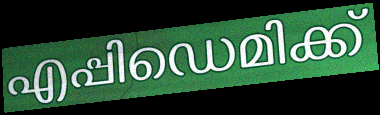
എപ്പിഡെമിക്ക്